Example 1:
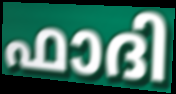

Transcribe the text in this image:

ഫാദി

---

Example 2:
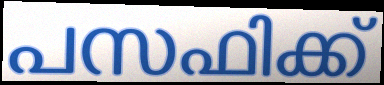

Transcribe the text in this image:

പസഫിക്ക്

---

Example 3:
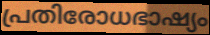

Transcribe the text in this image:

പ്രതിരോധഭാഷ്യം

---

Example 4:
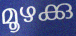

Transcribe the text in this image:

മൂഴക്കു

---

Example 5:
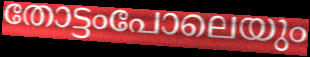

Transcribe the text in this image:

തോട്ടംപോലെയും